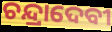
ଚନ୍ଦ୍ରାଦେବୀ